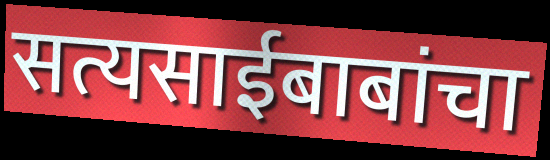
सत्यसाईबाबांचा